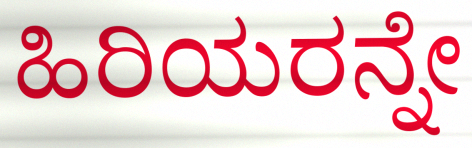
ಹಿರಿಯರನ್ನೇ